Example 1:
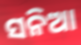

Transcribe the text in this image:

ସନିଆ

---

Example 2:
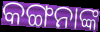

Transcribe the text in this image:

କଙ୍ଗନାଙ୍କ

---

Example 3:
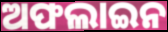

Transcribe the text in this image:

ଅଫଲାଇନ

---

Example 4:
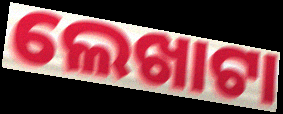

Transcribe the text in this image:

ଲେଖାଟା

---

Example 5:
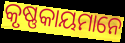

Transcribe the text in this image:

କୃଷ୍ଣକାୟମାନେ